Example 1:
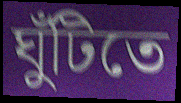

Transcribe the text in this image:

ঘুঁটিতে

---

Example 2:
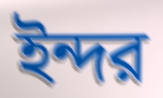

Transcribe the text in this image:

ইন্দর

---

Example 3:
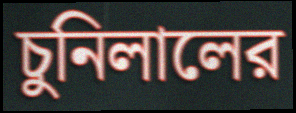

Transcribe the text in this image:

চুনিলালের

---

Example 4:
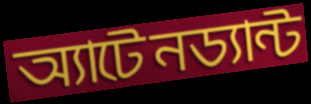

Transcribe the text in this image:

অ্যাটেনড্যান্ট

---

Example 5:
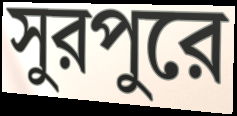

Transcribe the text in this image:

সুরপুরে